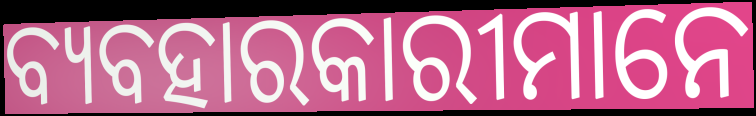
ବ୍ୟବହାରକାରୀମାନେ